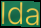
lda